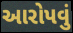
આરોપવું